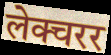
लेक्चरर